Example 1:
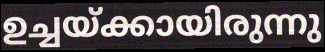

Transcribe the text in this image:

ഉച്ചയ്ക്കായിരുന്നു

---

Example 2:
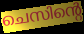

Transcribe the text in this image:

ചെസിന്റെ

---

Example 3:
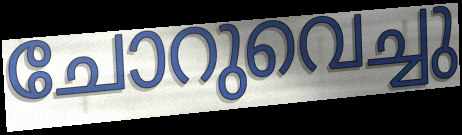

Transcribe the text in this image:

ചോറുവെച്ചു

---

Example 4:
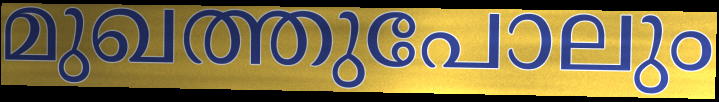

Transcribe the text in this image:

മുഖത്തുപോലും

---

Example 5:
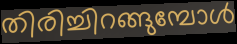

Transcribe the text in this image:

തിരിച്ചിറങ്ങുമ്പോൾ